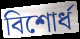
বিশোর্ধ